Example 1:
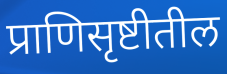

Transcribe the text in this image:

प्राणिसृष्टीतील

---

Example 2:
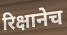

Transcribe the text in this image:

रिक्षानेच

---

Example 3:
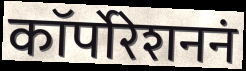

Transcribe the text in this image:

कॉर्पोरेशननं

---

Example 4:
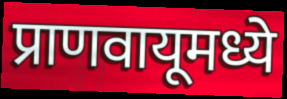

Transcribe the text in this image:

प्राणवायूमध्ये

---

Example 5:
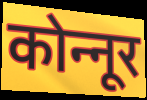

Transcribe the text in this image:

कोन्नूर